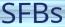
SFBs